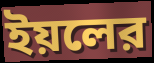
ইয়লের